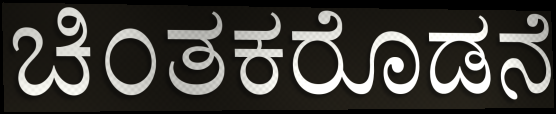
ಚಿಂತಕರೊಡನೆ